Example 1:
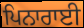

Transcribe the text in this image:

ਪਿਨਾਰਾਈ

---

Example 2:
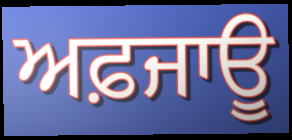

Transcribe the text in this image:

ਅਫ਼ਜਾਊ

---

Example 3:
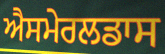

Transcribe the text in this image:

ਐਸਮੇਰਲਡਾਸ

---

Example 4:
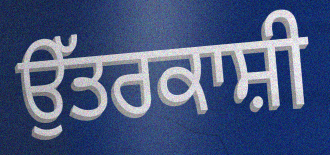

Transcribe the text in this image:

ਉੱਤਰਕਾਸ਼ੀ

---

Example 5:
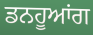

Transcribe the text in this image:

ਡਨਹੂਆਂਗ